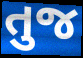
તુજ